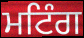
ਮਟਿੰਗ